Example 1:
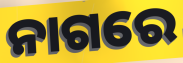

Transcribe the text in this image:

ନାଗରେ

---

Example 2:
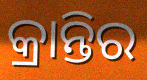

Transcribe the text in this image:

କ୍ରାନ୍ତିର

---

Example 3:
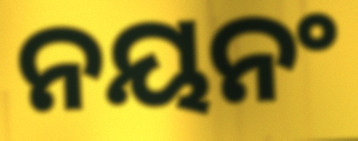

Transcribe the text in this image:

ନୟନଂ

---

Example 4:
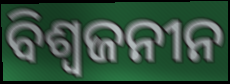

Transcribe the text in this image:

ବିଶ୍ବଜନୀନ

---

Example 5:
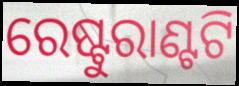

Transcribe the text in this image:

ରେଷ୍ଟୁରାଣ୍ଟଟି